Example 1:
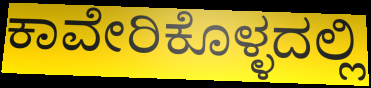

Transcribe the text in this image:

ಕಾವೇರಿಕೊಳ್ಳದಲ್ಲಿ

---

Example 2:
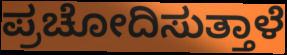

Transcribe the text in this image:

ಪ್ರಚೋದಿಸುತ್ತಾಳೆ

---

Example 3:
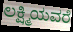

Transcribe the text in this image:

ಲಕ್ಷ್ಮಿಯವರೆ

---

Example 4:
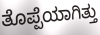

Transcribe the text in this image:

ತೊಪ್ಪೆಯಾಗಿತ್ತು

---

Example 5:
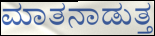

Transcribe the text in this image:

ಮಾತನಾಡುತ್ತ